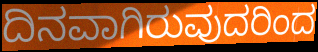
ದಿನವಾಗಿರುವುದರಿಂದ